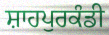
ਸ਼ਾਹਪੁਰਕੰਡੀ